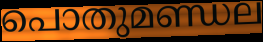
പൊതുമണ്ഡല